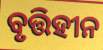
ବୃତ୍ତିହୀନ